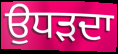
ਉਧੜਦਾ